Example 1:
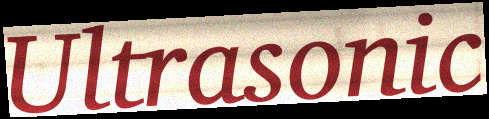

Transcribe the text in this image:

Ultrasonic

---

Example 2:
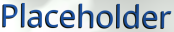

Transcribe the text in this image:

Placeholder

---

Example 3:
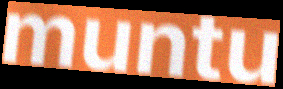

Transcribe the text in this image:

muntu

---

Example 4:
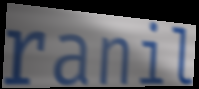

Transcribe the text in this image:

ranil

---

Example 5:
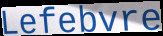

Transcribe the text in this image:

Lefebvre